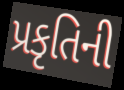
પ્રકૃતિની